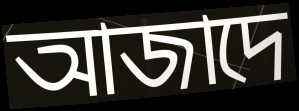
আজাদে